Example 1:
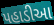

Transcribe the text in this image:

પહાડીઆ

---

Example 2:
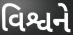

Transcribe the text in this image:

વિશ્વને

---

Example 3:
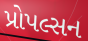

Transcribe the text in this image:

પ્રોપલ્સન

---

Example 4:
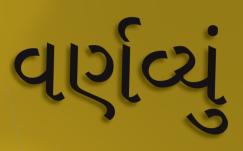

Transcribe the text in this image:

વર્ણવ્યું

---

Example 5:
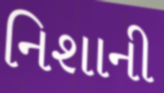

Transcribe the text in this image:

નિશાની